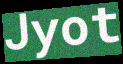
Jyot